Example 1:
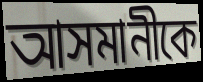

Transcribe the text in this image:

আসমানীকে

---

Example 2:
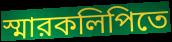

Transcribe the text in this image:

স্মারকলিপিতে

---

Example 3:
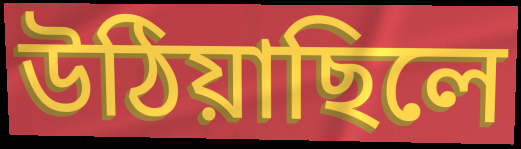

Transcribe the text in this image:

উঠিয়াছিলে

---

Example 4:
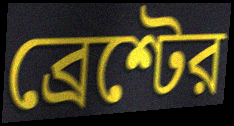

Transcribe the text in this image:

ব্রেশ্টের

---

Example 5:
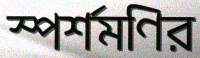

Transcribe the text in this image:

স্পর্শমণির